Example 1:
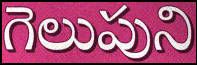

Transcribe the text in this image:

గెలుపుని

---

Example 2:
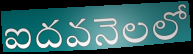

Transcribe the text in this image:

ఐదవనెలలో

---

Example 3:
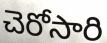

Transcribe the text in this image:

చెరోసారి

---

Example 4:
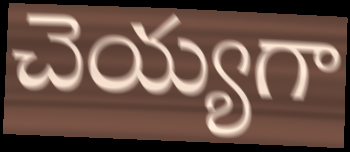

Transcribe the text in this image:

చెయ్యగా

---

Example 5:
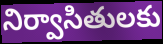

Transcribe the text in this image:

నిర్వాసితులకు